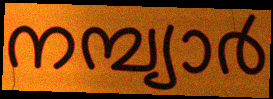
നമ്പ്യാർ